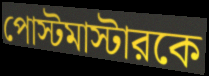
পোস্টমাস্টারকে